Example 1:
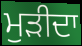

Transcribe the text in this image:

ਮੁੜੀਦਾ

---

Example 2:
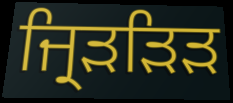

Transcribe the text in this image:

ਜ੍ਰਿੜੜਿੜ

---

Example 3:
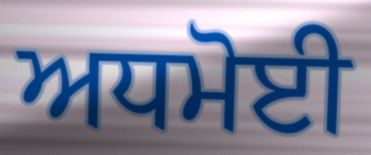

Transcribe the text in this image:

ਅਧਮੋਈ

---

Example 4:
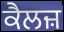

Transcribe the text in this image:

ਕੈਲਜ਼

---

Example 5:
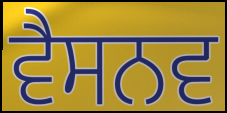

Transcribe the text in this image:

ਵੈਸਨਵ